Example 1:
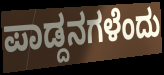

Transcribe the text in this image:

ಪಾಡ್ದನಗಳೆಂದು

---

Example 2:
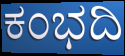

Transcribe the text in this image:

ಕಂಭದಿ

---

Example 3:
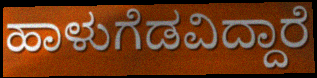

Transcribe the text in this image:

ಹಾಳುಗೆಡವಿದ್ದಾರೆ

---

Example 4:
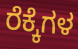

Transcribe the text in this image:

ರೆಕ್ಕೆಗಳ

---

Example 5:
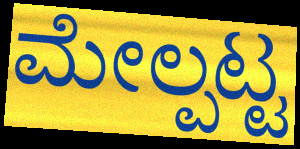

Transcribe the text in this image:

ಮೇಲ್ಪಟ್ಟ